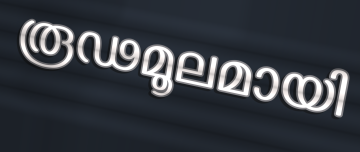
രൂഢമൂലമായി